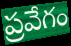
ప్రవేగం